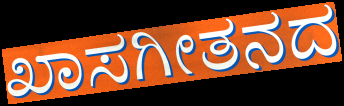
ಖಾಸಗೀತನದ